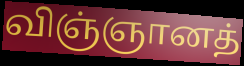
விஞ்ஞானத்